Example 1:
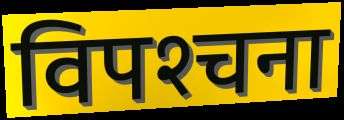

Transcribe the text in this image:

विपश्चना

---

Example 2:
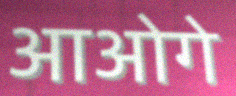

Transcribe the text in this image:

आओगे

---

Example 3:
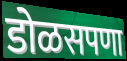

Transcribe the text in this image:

डोळसपणा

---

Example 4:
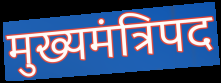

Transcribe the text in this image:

मुख्यमंत्रिपद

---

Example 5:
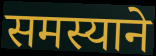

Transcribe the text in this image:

समस्याने